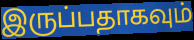
இருப்பதாகவும்